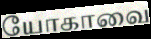
யோகாவை